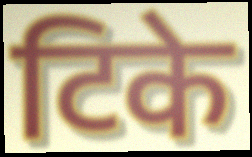
टिके